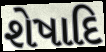
શેષાદિ